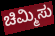
ಚಿಮ್ಮಿಸು